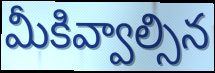
మీకివ్వాల్సిన